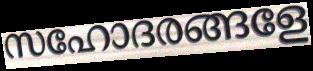
സഹോദരങ്ങളേ